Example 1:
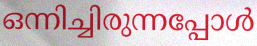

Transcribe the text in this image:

ഒന്നിച്ചിരുന്നപ്പോൾ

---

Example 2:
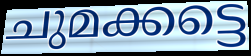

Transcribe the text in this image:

ചുമക്കട്ടെ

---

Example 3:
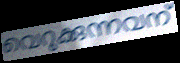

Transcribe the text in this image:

വെറുക്കുന്നവന്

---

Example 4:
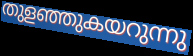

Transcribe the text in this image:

തുളഞ്ഞുകയറുന്നു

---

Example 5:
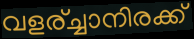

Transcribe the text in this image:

വളര്ച്ചാനിരക്ക്